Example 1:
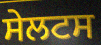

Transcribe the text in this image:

ਸੇਲਟਸ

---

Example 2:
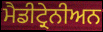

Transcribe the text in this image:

ਮੈਡੀਟ੍ਰੇਨੀਅਨ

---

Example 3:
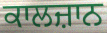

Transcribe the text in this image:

ਕਾਲਜ਼ਾਨ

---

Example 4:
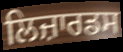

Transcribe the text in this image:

ਲਿਜ਼ਾਰਡਸ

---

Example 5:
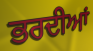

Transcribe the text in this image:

ਭਰਦੀਆਂ